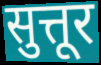
सुत्तूर